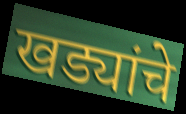
खड्यांचे